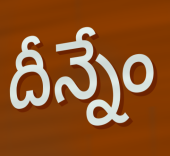
దీన్నేం